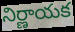
నిర్ణాయక